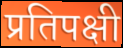
प्रतिपक्षी